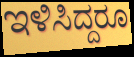
ಇಳಿಸಿದ್ದರೂ